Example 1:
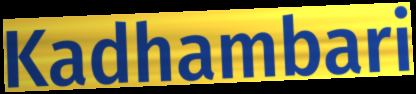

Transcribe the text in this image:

Kadhambari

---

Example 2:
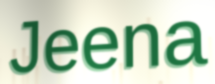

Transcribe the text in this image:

Jeena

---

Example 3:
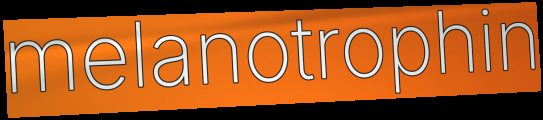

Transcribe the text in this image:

melanotrophin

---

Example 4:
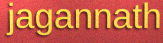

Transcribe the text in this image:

jagannath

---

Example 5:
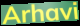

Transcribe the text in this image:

Arhavi